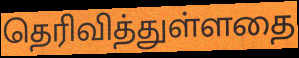
தெரிவித்துள்ளதை